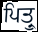
ਪਿਤ੍ਰੁ